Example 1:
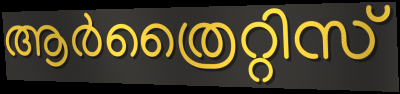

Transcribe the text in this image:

ആർത്രൈറ്റിസ്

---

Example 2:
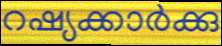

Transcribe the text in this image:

റഷ്യക്കാർക്കു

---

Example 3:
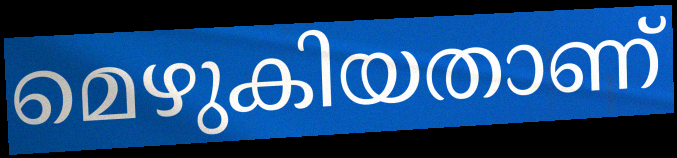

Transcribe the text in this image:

മെഴുകിയതാണ്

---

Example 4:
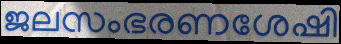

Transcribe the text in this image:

ജലസംഭരണശേഷി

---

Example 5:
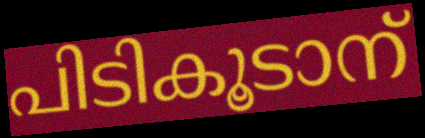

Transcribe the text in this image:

പിടികൂടാന്